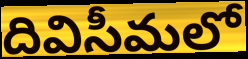
దివిసీమలో